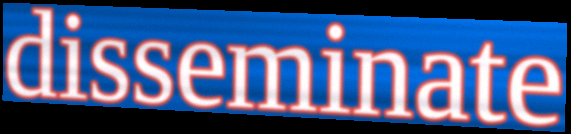
disseminate